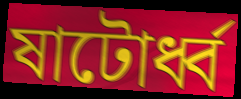
ষাটোর্ধ্ব